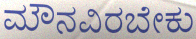
ಮೌನವಿರಬೇಕು